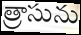
త్రాసును